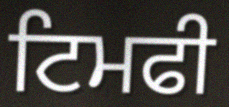
ਟਿਮਫੀ